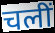
चलीं